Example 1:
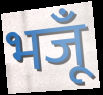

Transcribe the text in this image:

भजूँ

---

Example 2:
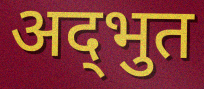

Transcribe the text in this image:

अद्‌भुत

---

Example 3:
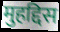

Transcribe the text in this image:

मुहद्दिस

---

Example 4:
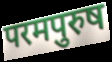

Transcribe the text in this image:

परमपुरुष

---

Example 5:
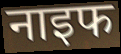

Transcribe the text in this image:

नाइफ